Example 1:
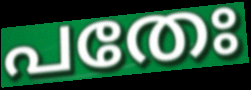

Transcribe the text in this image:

പതേഃ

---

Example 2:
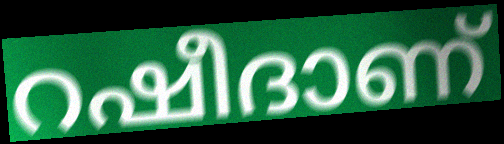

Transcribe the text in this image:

റഷീദാണ്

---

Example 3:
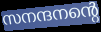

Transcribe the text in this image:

സനന്ദനന്റെ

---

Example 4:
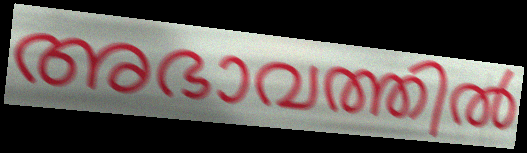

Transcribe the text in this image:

അഭാവത്തിൽ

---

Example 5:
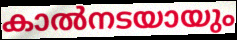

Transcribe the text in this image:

കാൽനടയായും